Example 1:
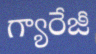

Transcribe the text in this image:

గ్యారేజీ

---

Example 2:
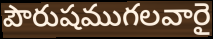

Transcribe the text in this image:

పౌరుషముగలవారై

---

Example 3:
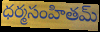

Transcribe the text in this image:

ధర్మసంహితమ్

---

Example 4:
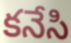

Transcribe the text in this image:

కనేసి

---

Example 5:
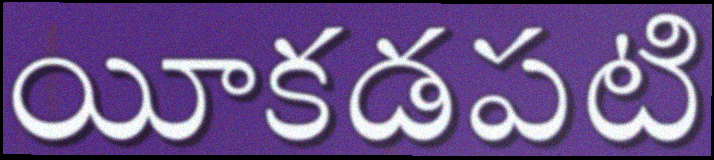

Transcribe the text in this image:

యీకడపటి